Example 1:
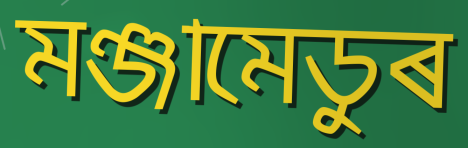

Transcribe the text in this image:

মঞ্জামেডুৰ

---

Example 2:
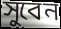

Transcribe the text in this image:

সুবেন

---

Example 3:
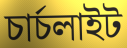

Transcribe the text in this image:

চাৰ্চলাইট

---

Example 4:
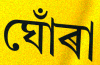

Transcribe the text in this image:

ঘোঁৰা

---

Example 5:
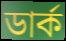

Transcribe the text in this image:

ডাৰ্ক